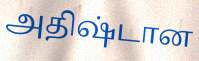
அதிஷ்டான